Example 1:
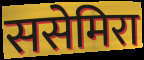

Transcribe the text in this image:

ससेमिरा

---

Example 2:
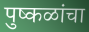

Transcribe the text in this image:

पुष्कळांचा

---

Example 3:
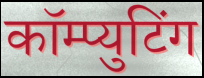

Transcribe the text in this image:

कॉम्प्युटिंग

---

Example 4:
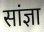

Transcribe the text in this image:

सांज्ञा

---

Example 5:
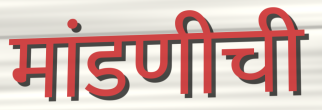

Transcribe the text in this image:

मांडणीची